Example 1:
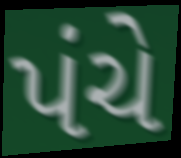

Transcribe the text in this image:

પંચે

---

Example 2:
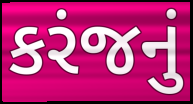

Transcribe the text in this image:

કરંજનું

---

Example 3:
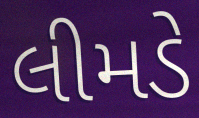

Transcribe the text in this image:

લીમડે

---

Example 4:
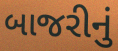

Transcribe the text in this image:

બાજરીનું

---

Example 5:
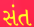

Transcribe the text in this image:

સંત